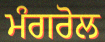
ਮੰਗਰੋਲ